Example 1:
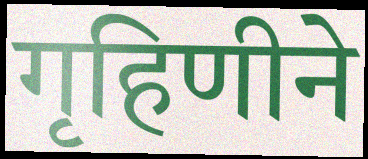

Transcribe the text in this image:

गृहिणीने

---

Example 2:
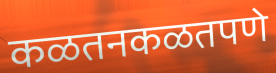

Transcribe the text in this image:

कळतनकळतपणे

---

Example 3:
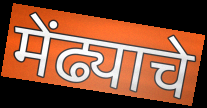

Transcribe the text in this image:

मेंढ्याचे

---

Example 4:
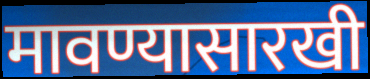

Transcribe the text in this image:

मावण्यासारखी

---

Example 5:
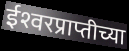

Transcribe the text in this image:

ईश्वरप्राप्तीच्या